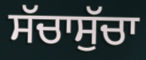
ਸੱਚਾਸੁੱਚਾ